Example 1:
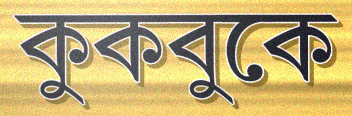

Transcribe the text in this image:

কুকবুকে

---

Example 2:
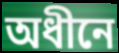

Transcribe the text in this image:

অধীনে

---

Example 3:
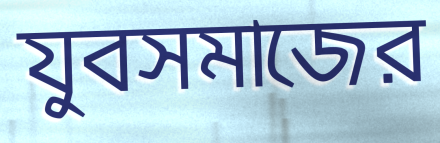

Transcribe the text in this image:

যুবসমাজের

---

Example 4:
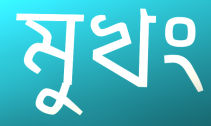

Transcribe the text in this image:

মুখং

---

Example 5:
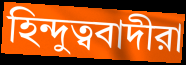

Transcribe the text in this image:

হিন্দুত্ববাদীরা